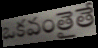
ఒకవంతైతే